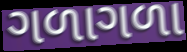
ગળાગળા